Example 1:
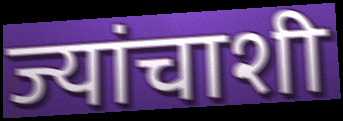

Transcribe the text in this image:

ज्यांचाशी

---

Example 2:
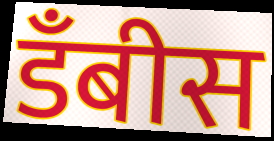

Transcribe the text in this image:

डॅंबीस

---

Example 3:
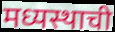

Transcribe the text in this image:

मध्यस्थाची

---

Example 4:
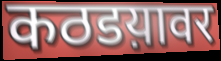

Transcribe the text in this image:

कठडय़ावर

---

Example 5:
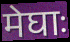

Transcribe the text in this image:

मेघाः